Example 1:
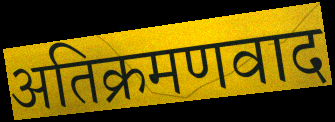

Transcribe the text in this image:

अतिक्रमणवाद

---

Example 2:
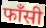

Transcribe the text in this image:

फाँसी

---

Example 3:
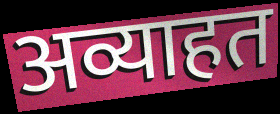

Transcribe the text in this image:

अव्याहत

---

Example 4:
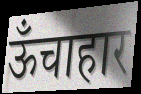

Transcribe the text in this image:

ऊँचाहार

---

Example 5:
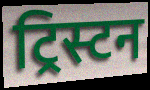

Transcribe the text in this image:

ट्रिस्टन